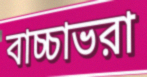
বাচ্চাভরা